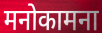
मनोकामना